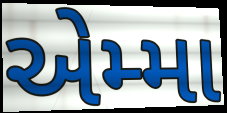
એમ્મા